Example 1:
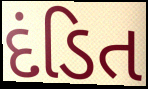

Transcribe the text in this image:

દંડિત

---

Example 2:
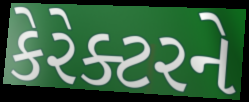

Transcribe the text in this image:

કેરેક્ટરને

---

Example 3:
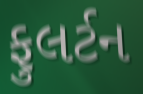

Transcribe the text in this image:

ફુલર્ટન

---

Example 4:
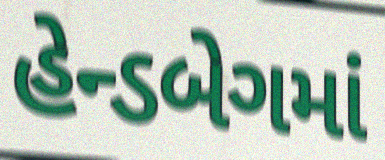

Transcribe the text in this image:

હેન્ડબેગમાં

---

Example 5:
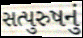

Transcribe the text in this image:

સત્પુરુષનું